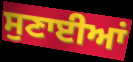
ਸੁਣਾਈਆਂ